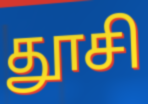
தூசி